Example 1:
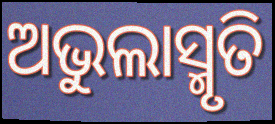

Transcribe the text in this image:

ଅଭୁଲାସ୍ମୃତି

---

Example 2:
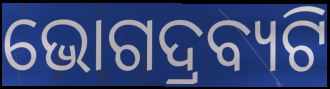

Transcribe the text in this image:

ଭୋଗଦ୍ରବ୍ୟଟି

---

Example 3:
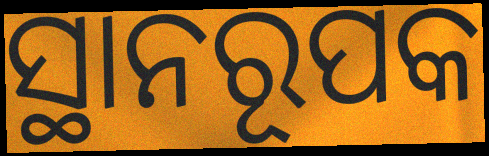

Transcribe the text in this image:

ସ୍ଥାନରୂପକ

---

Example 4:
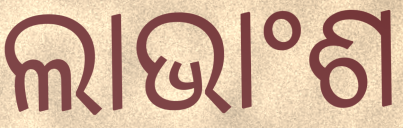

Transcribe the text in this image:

ଲାଭାଂଶ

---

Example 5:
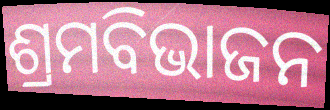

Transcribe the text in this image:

ଶ୍ରମବିଭାଜନ